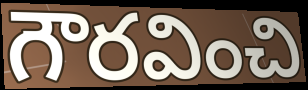
గౌరవించి